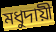
মধুদায়ী